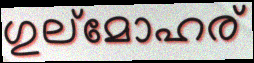
ഗുല്മോഹര്